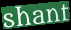
shant